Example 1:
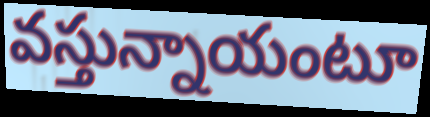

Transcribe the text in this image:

వస్తున్నాయంటూ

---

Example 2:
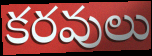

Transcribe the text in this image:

కరవులు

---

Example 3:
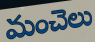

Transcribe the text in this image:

మంచెలు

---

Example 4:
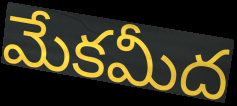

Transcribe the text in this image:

మేకమీద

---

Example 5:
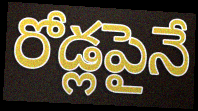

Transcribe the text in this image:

రోడ్లపైనే